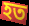
হত